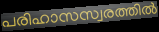
പരിഹാസസ്വരത്തിൽ